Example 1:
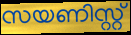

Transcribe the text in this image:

സയണിസ്റ്റ്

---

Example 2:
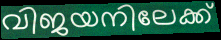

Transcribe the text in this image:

വിജയനിലേക്ക്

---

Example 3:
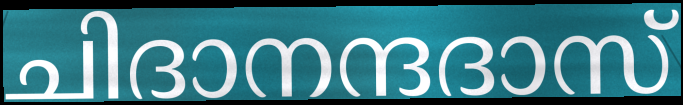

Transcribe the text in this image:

ചിദാനന്ദദാസ്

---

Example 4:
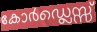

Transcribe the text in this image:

കോർഡ്ലെസ്സ്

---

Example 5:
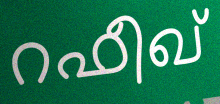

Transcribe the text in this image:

റഫീഖ്